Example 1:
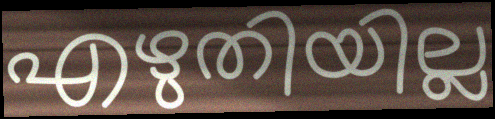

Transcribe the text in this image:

എഴുതിയില്ല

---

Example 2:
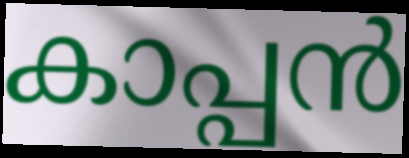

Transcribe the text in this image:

കാപ്പൻ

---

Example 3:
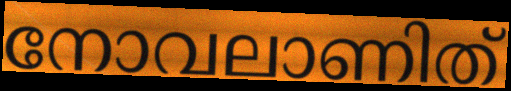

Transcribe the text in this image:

നോവലാണിത്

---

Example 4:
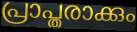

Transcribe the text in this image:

പ്രാപ്തരാക്കും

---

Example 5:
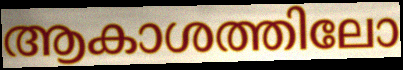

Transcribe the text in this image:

ആകാശത്തിലോ